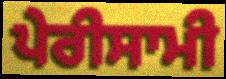
ਪੇਰੀਸਾਮੀ